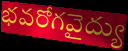
భవరోగవైద్యు